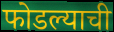
फोडल्याची